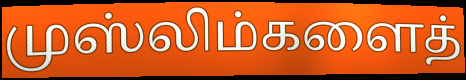
முஸ்லிம்களைத்